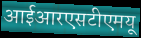
आईआरएसटीएमयू